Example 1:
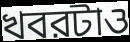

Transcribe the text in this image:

খবরটাও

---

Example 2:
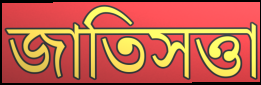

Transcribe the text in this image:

জাতিসত্তা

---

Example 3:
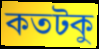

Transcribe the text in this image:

কতটকু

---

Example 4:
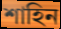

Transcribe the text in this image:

শাহিন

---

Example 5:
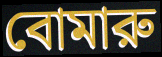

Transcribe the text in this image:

বোমারু